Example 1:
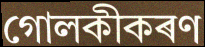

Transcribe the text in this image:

গোলকীকৰণ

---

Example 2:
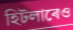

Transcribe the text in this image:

হিটলাৰেও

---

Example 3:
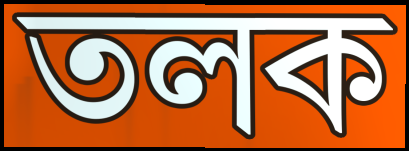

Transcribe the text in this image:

তলক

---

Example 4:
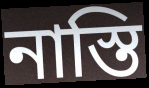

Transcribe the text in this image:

নাস্তি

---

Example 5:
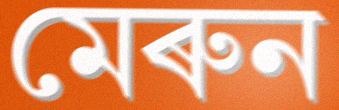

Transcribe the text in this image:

মেৰুন